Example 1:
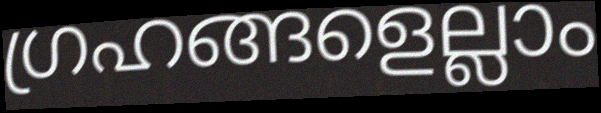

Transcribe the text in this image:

ഗ്രഹങ്ങളെല്ലാം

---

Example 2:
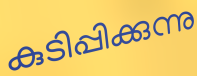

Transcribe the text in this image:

കുടിപ്പിക്കുന്നു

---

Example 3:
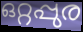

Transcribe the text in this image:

ഒറ്റപ്പുര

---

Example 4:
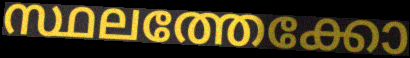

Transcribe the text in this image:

സ്ഥലത്തേക്കോ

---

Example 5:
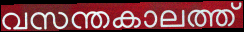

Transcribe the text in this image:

വസന്തകാലത്ത്